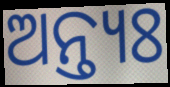
ଅନ୍ତ୍ୟଃ